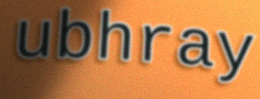
ubhray